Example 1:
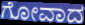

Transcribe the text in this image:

ಗೋವಾದ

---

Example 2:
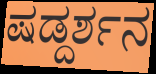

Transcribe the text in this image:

ಷಡ್ದರ್ಶನ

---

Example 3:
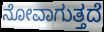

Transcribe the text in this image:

ನೋವಾಗುತ್ತದೆ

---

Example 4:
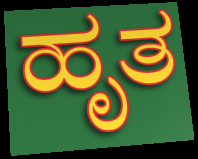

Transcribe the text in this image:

ಹೃತ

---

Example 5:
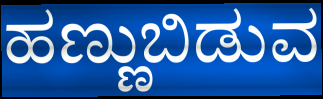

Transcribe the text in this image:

ಹಣ್ಣುಬಿಡುವ